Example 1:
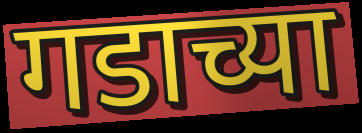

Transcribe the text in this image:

गडाच्या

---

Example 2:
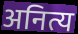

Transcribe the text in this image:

अनित्य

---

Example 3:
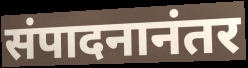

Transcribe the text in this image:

संपादनानंतर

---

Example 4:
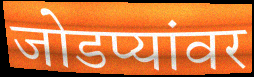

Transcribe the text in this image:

जोडप्यांवर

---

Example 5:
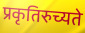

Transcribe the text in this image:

प्रकृतिरुच्यते